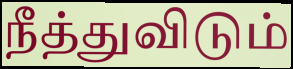
நீத்துவிடும்